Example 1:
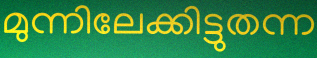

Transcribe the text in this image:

മുന്നിലേക്കിട്ടുതന്ന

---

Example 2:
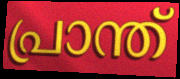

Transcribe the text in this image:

പ്രാന്ത്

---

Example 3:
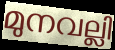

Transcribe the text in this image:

മുനവല്ലി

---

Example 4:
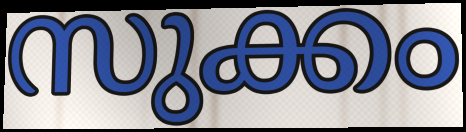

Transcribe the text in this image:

സുക്കം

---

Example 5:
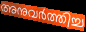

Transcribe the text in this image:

അനുവർത്തിച്ച